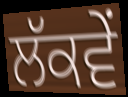
ਲੱਕਵੇਂ